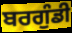
ਬਰਗੁੰਡੀ